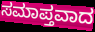
ಸಮಾಪ್ತವಾದ